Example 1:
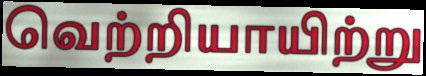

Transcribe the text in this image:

வெற்றியாயிற்று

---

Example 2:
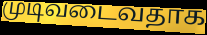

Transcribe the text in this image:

முடிவடைவதாக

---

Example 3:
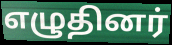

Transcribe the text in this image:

எழுதினர்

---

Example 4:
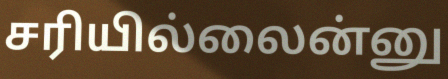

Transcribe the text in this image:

சரியில்லைன்னு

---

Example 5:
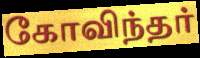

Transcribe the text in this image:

கோவிந்தர்